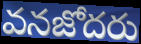
వనజోదరు